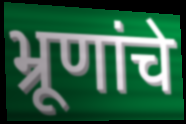
भ्रूणांचे